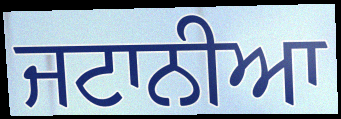
ਜਟਾਨੀਆ